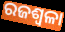
ରଜଶ୍ୱଳା